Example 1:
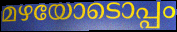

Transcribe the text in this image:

മഴയോടൊപ്പം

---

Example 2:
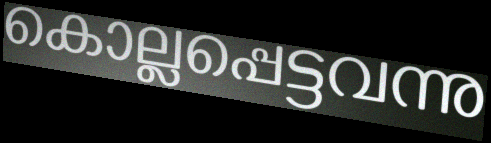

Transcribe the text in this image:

കൊല്ലപ്പെട്ടവന്നു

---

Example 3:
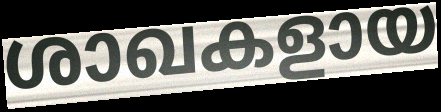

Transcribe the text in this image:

ശാഖകളായ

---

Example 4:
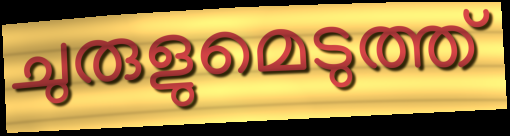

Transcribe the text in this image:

ചുരുളുമെടുത്ത്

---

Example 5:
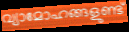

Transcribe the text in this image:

വ്യാമോഹങ്ങളുണ്ട്